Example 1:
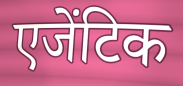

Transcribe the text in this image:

एजेंटिक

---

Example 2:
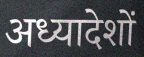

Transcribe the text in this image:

अध्यादेशों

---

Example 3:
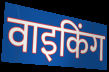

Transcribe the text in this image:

वाइकिंग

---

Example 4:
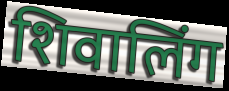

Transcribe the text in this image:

शिवालिंग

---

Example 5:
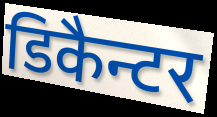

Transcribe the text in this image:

डिकैन्टर